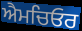
ਐਮਚਿਓਰ